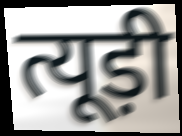
त्यूड़ी